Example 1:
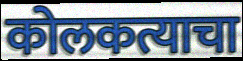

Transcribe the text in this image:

कोलकत्याचा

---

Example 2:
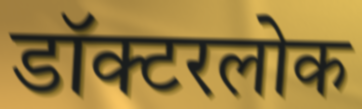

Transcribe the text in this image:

डॉक्टरलोक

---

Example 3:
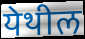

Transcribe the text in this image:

येथील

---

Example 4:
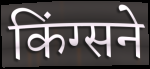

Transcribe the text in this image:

किंग्सने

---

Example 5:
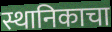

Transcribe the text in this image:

स्थानिकाचा